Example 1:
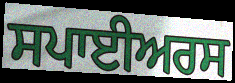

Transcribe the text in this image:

ਸਪਾਈਅਰਸ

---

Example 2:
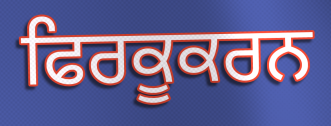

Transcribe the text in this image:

ਫਿਰਕੂਕਰਨ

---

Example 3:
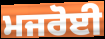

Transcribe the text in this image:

ਮਜਰੋਈ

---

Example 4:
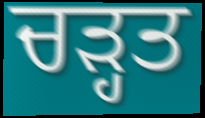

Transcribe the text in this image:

ਚੜ੍ਹਤ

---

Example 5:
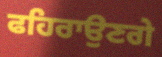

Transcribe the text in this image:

ਫਹਿਰਾਉਣਗੇ